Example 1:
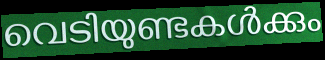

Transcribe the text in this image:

വെടിയുണ്ടകൾക്കും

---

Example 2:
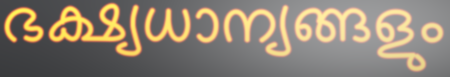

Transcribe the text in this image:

ഭക്ഷ്യധാന്യങ്ങളും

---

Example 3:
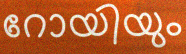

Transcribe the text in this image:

റോയിയും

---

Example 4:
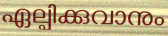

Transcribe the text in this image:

ഏല്പിക്കുവാനും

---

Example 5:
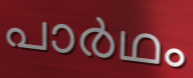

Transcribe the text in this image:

പാർഥം